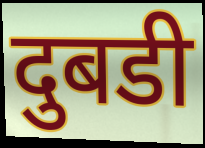
दुबडी